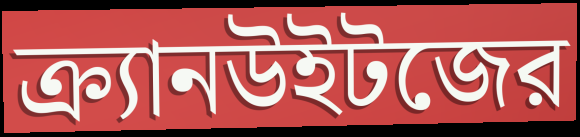
ক্র্যানউইটজের